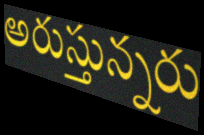
అరుస్తున్నరు